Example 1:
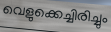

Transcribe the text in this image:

വെളുക്കെച്ചിരിച്ചും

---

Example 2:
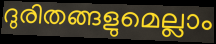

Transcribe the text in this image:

ദുരിതങ്ങളുമെല്ലാം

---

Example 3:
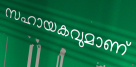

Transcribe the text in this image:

സഹായകവുമാണ്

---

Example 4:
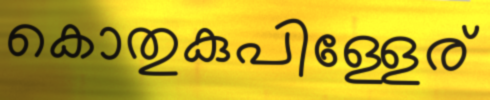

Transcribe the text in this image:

കൊതുകുപിള്ളേര്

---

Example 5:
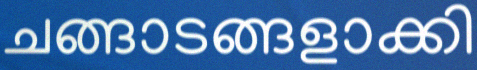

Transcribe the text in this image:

ചങ്ങാടങ്ങളാക്കി